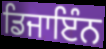
ਡਿਜਾਇੰਨ